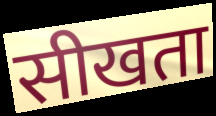
सीखता